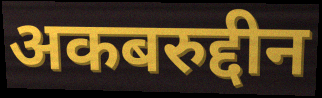
अकबरुद्दीन